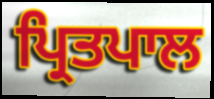
ਪ੍ਰਿਤਪਾਲ